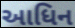
આધિન